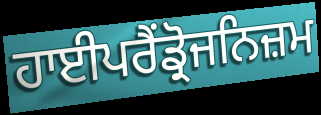
ਹਾਈਪਰੈਂਡ੍ਰੋਜਨਿਜ਼ਮ